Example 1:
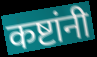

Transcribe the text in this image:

कष्टांनी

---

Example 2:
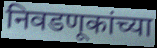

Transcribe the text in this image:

निवडणूकांच्या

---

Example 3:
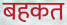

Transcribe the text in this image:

बहकत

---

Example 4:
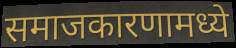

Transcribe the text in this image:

समाजकारणामध्ये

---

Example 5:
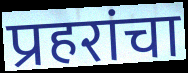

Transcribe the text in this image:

प्रहरांचा